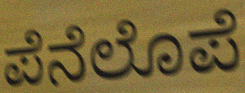
ಪೆನೆಲೊಪೆ